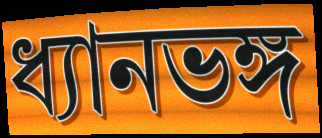
ধ্যানভঙ্গ